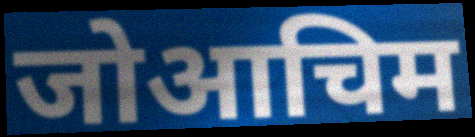
जोआचिम